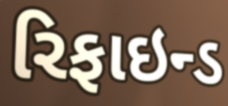
રિફાઇન્ડ